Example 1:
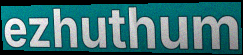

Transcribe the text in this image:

ezhuthum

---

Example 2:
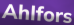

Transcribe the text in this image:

Ahlfors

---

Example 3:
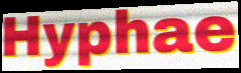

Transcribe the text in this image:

Hyphae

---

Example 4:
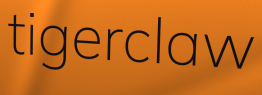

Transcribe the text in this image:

tigerclaw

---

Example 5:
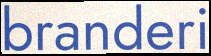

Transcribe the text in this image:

branderi